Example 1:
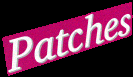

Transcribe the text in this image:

Patches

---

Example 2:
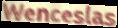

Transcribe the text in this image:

Wenceslas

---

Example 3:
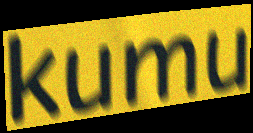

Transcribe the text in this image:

kumu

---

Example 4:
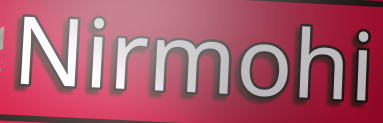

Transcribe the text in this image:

Nirmohi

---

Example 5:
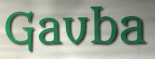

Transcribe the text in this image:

Gauba